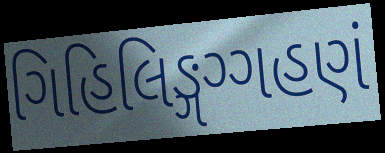
ગિહિલિઙ્ગગ્ગહણં